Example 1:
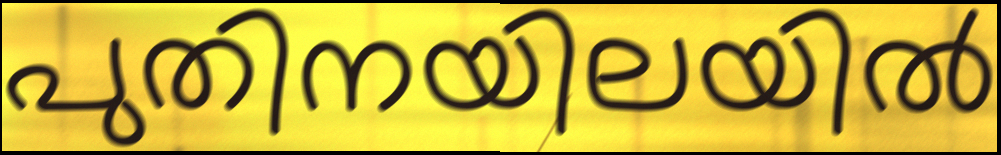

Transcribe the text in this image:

പുതിനയിലയിൽ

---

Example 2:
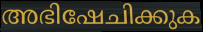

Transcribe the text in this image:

അഭിഷേചിക്കുക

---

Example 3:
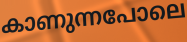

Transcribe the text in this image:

കാണുന്നപോലെ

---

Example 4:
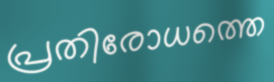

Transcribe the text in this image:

പ്രതിരോധത്തെ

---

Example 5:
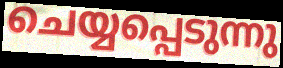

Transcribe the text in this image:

ചെയ്യപ്പെടുന്നു